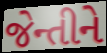
જેન્તીને